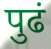
पुढं